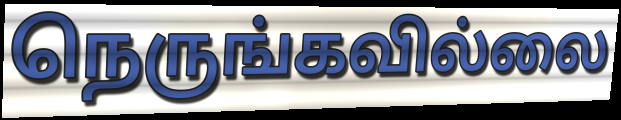
நெருங்கவில்லை